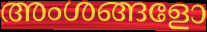
അംശങ്ങളോ